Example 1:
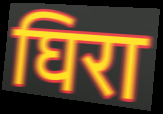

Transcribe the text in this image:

घिरा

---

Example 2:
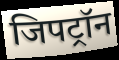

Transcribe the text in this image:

जिपट्रॉन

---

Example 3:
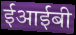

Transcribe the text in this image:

ईआईबी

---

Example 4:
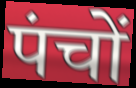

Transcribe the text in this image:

पंचों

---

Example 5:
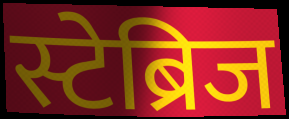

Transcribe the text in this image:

स्टेब्रिज